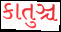
કાતુઞ્ચ